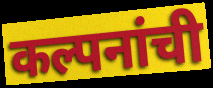
कल्पनांची